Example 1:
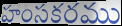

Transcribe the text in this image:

హంసకరము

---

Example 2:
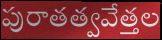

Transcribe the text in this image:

పురాతత్వవేత్తల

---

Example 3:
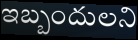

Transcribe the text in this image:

ఇబ్బందులని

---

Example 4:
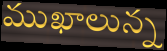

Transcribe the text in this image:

ముఖాలున్న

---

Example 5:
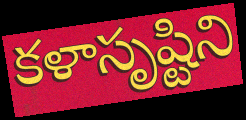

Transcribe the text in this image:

కళాసృష్టిని